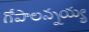
గోపాలన్నయ్య